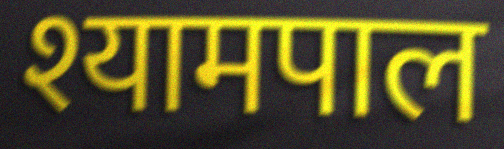
श्यामपाल